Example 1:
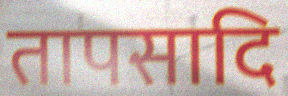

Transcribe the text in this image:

तापसादि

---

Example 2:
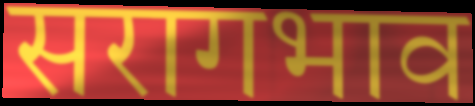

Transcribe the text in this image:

सरागभाव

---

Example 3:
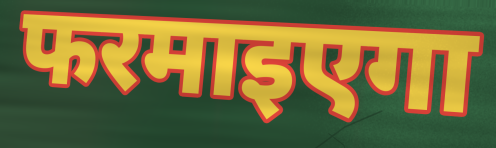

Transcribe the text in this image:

फरमाइएगा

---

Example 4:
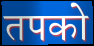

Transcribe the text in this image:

तपको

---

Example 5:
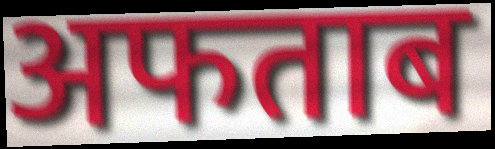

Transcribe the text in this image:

अफताब